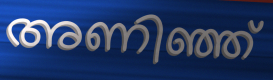
അണിഞ്ഞ്